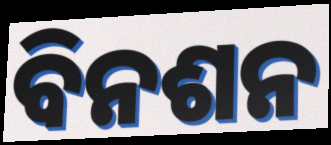
ବିନଶନ